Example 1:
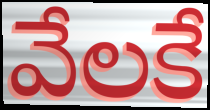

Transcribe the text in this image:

వేలకే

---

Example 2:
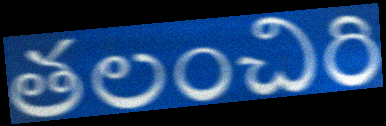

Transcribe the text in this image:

తలంచిరి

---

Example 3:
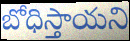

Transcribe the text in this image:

బోధిస్తాయని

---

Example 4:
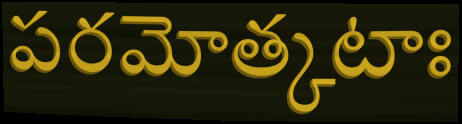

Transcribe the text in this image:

పరమోత్కటాః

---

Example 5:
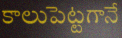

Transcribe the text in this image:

కాలుపెట్టగానే